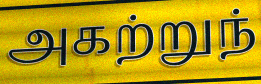
அகற்றுந்